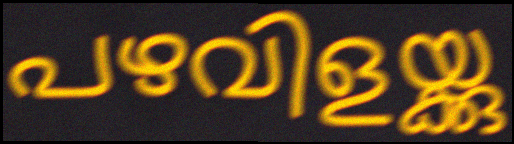
പഴവിളയ്ക്കു